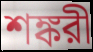
শঙ্করী